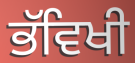
ਭੱਵਿਖੀ